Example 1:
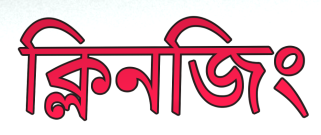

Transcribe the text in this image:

ক্লিনজিং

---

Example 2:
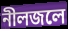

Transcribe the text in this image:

নীলজলে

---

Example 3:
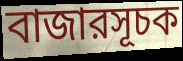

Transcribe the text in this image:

বাজারসূচক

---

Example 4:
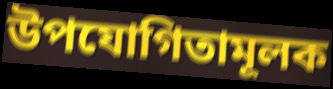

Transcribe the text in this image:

উপযোগিতামূলক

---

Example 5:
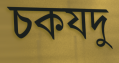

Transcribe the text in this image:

চকযদু